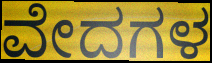
ವೇದಗಳ